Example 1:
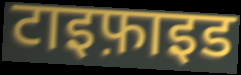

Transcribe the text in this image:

टाइफ़ाइड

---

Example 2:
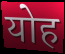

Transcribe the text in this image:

योह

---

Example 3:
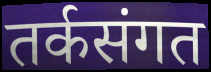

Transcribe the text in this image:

तर्कसंगत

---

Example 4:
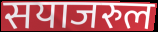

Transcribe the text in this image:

सयाजरुल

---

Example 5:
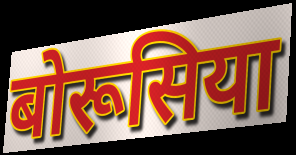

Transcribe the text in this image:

बोरूसिया